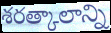
శరత్కాలాన్ని